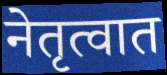
नेतृत्वात